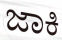
ಜಾಕಿ